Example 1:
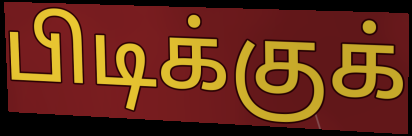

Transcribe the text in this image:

பிடிக்குக்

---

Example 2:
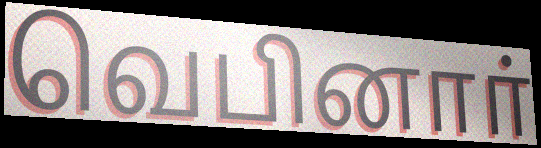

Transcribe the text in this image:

வெபினார்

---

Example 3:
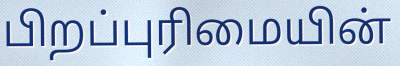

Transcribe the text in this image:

பிறப்புரிமையின்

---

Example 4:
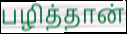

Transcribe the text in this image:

பழித்தான்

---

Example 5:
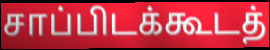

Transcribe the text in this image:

சாப்பிடக்கூடத்